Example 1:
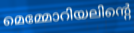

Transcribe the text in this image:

മെമ്മോറിയലിന്റെ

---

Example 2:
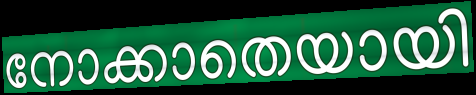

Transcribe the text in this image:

നോക്കാതെയായി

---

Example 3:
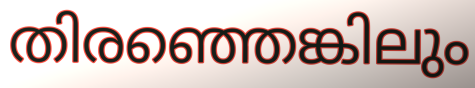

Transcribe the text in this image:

തിരഞ്ഞെങ്കിലും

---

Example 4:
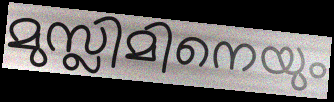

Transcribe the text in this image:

മുസ്ലിമിനെയും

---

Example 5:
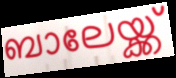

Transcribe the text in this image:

ബാലേയ്ക്ക്